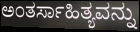
ಅಂತರ್ಸಾಹಿತ್ಯವನ್ನು